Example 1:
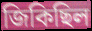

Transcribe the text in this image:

জিকিছিল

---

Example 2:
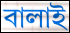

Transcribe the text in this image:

বালাই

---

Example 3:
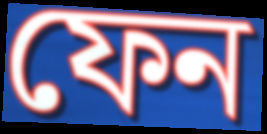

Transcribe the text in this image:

ফেন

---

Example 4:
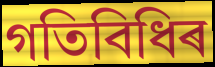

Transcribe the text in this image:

গতিবিধিৰ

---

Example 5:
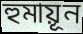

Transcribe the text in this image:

হুমায়ূন